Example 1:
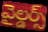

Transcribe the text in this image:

వైల్డర్స్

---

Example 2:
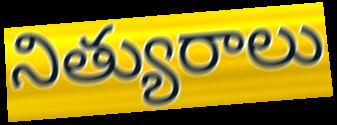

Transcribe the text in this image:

నిత్యురాలు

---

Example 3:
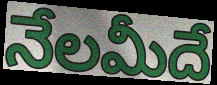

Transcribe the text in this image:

నేలమీదే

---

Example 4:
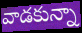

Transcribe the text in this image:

వాడకున్నా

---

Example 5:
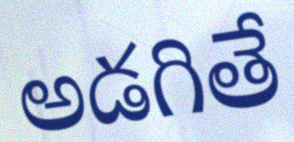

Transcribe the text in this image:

అడగితే